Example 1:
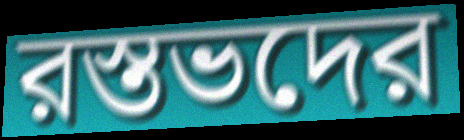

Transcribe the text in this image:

রস্তভদের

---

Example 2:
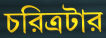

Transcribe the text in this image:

চরিত্রটার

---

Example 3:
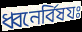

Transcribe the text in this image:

ধ্বনের্বিষযঃ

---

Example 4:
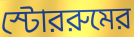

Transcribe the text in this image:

স্টোররুমের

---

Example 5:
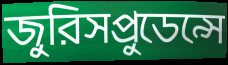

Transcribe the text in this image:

জুরিসপ্রুডেন্সে